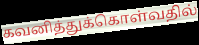
கவனித்துக்கொள்வதில்